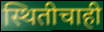
स्थितीचाही